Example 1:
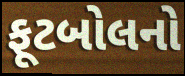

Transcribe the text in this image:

ફૂટબોલનો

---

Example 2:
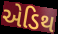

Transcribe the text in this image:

એડિથ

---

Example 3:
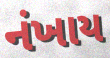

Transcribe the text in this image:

નંખાય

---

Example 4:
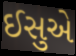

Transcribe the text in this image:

ઈસુએ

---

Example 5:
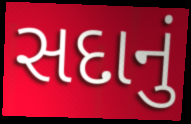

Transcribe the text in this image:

સદાનું